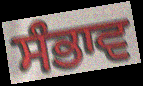
ਸੰਭਾਵ